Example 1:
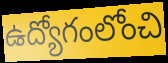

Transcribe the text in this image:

ఉద్యోగంలోంచి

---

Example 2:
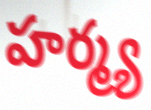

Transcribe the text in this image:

హర్మ్య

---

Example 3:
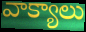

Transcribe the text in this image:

వాక్యాలు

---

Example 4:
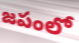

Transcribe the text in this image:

జపంలో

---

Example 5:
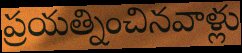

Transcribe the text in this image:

ప్రయత్నించినవాళ్లు